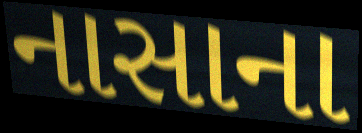
નાસાના